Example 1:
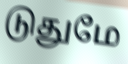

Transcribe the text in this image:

டுதுமே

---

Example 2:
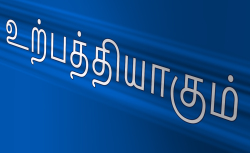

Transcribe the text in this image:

உற்பத்தியாகும்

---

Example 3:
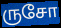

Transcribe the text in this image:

ருசோ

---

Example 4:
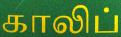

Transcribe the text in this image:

காலிப்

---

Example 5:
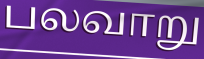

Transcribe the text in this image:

பலவாறு